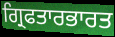
ਗ੍ਰਿਫਤਾਰਭਾਰਤ